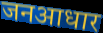
जनआधार